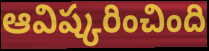
ఆవిష్కరించింది